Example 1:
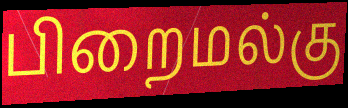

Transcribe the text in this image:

பிறைமல்கு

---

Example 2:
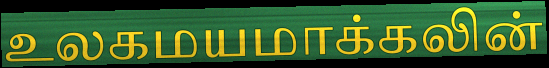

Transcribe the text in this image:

உலகமயமாக்கலின்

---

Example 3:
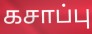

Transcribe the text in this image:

கசாப்பு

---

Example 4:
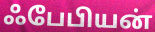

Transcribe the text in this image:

ஃபேபியன்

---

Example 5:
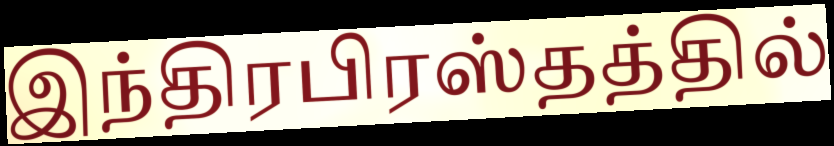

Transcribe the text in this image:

இந்திரபிரஸ்தத்தில்